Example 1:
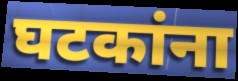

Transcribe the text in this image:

घटकांना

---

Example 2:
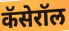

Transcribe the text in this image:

कॅसेरॉल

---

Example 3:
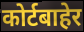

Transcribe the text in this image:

कोर्टबाहेर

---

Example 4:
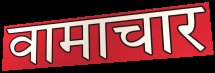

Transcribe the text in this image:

वामाचार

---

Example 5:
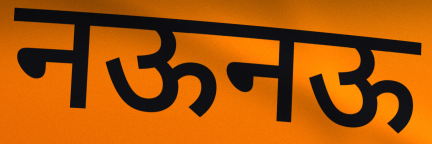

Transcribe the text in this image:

नऊनऊ